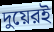
দুয়েরই